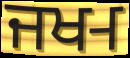
ਜਖ੍ਮ